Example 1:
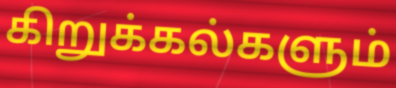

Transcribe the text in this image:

கிறுக்கல்களும்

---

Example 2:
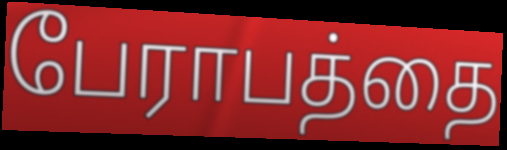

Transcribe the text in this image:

பேராபத்தை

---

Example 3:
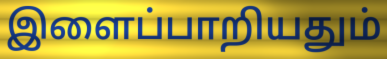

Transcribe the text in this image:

இளைப்பாறியதும்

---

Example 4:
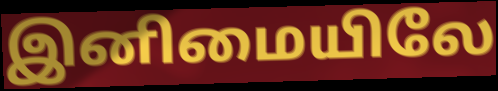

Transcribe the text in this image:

இனிமையிலே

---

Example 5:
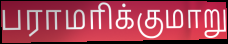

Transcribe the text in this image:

பராமரிக்குமாறு